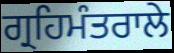
ਗ੍ਰਹਿਮੰਤਰਾਲੇ